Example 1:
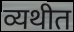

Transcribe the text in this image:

व्यथीत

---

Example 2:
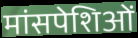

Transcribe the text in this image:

मांसपेशिओं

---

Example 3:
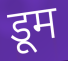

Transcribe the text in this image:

डूम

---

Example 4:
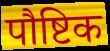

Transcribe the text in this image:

पौष्टिक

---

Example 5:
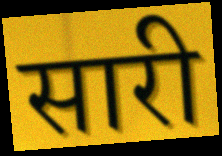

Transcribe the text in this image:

सारी